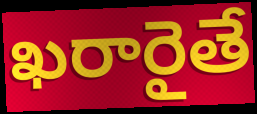
ఖరారైతే